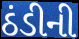
ઠંડીની